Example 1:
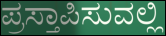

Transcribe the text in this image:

ಪ್ರಸ್ತಾಪಿಸುವಲ್ಲಿ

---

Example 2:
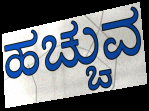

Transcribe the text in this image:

ಹಚ್ಚುವ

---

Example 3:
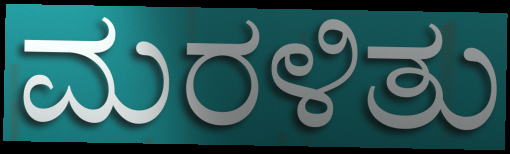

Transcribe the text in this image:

ಮರಳಿತು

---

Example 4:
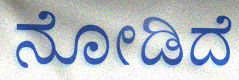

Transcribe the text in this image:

ನೋಡಿದೆ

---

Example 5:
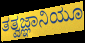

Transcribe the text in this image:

ತತ್ವಜ್ಞಾನಿಯೂ